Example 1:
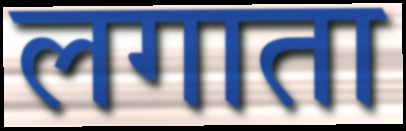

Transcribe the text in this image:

लगाता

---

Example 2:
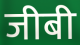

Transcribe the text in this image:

जीबी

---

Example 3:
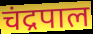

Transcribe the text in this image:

चंद्रपाल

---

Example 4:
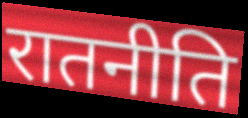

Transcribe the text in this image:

रातनीति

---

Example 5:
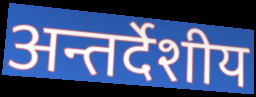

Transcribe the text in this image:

अन्तर्देशीय